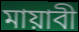
মায়াবী